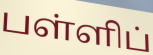
பள்ளிப்